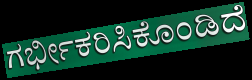
ಗರ್ಭೀಕರಿಸಿಕೊಂಡಿದೆ